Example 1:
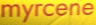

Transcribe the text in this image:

myrcene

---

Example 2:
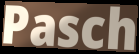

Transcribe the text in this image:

Pasch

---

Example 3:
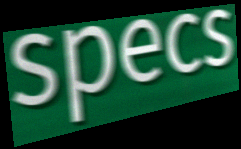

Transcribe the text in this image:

specs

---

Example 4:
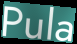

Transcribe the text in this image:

Pula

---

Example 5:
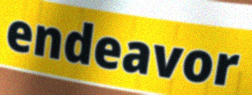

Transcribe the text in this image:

endeavor